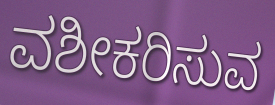
ವಶೀಕರಿಸುವ